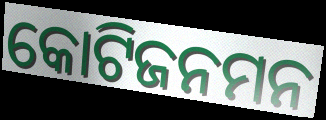
କୋଟିଜନମନ